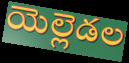
యెల్లెడల